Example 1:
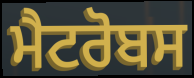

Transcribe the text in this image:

ਮੈਟਰੋਬਸ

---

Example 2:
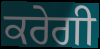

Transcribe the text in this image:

ਕਰੇਗੀ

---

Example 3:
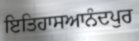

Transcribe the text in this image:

ਇਤਿਹਾਸਆਨੰਦਪੁਰ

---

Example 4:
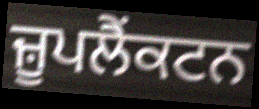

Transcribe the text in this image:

ਜ਼ੂਪਲੈਂਕਟਨ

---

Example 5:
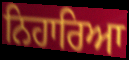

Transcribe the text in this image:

ਨਿਹਾਰਿਆ